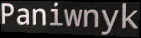
Paniwnyk